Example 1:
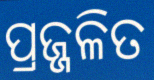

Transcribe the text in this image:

ପ୍ରଜ୍ଜଳିତ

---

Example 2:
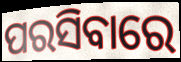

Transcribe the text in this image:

ପରସିବାରେ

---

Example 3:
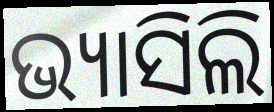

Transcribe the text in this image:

ଭ୍ୟାସିଲି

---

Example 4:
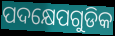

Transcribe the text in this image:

ପଦକ୍ଷେପଗୁଡିକ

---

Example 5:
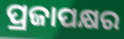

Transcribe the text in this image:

ପ୍ରଜାପକ୍ଷର